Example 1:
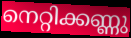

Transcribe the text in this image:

നെറ്റിക്കണ്ണു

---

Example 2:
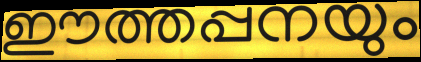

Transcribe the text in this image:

ഈത്തപ്പനയും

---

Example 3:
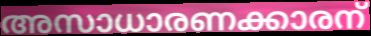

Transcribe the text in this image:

അസാധാരണക്കാരന്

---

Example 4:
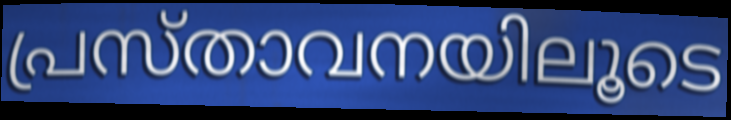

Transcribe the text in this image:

പ്രസ്താവനയിലൂടെ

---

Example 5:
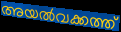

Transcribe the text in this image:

അയൽവക്കത്ത്